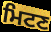
ਮਿਟਣ